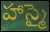
హాస్మై